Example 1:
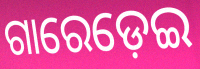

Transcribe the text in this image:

ଗାରେଡ଼େଇ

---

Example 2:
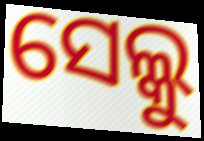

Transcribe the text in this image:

ସେଲ୍କୁ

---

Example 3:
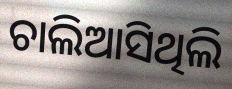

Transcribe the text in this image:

ଚାଲିଆସିଥିଲି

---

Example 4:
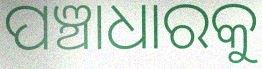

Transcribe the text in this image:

ପଞ୍ଚାଧାରକୁ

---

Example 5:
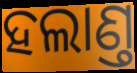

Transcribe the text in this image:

ହଲାଣ୍ତ